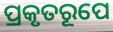
ପ୍ରକୃତରୂପେ